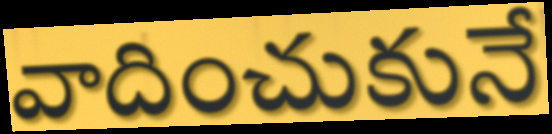
వాదించుకునే